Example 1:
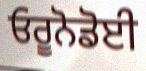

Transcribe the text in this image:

ਓਰੂਨੋਡੋਈ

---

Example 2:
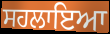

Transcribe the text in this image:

ਸਹਲਾਇਆ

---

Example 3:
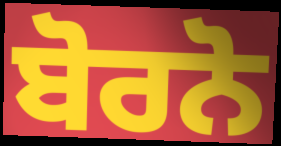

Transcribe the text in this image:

ਬੋਰਨੋ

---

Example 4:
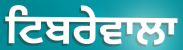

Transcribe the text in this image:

ਟਿਬਰੇਵਾਲਾ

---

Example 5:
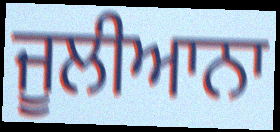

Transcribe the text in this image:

ਜੂਲੀਆਨਾ